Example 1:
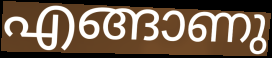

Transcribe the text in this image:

എങ്ങാണു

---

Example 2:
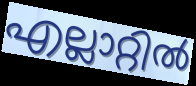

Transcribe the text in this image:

എല്ലാറ്റിൽ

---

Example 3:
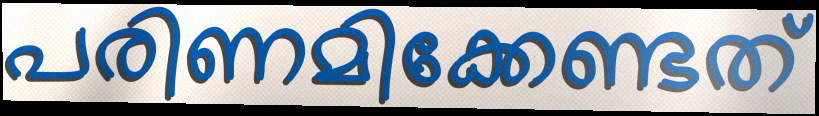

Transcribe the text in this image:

പരിണമിക്കേണ്ടത്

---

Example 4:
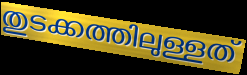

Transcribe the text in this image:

തുടക്കത്തിലുള്ളത്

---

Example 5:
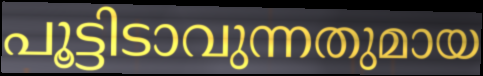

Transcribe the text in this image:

പൂട്ടിടാവുന്നതുമായ